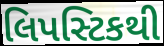
લિપસ્ટિકથી